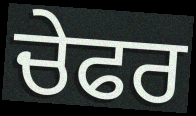
ਚੇਫਰ